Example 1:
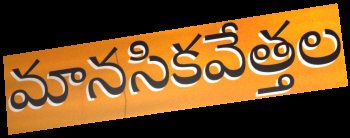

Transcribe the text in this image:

మానసికవేత్తల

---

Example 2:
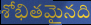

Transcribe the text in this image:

శోభితమైనది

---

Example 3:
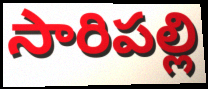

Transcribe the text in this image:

సారిపల్లి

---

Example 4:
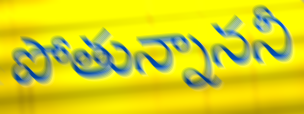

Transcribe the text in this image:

పోతున్నాననీ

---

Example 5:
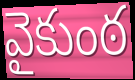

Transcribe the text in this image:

వైకుంఠ